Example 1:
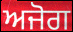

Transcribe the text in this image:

ਅਜੋਗ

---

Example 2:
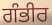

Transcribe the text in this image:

ਗੰਭੀਰ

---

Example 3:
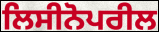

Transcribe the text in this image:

ਲਿਸੀਨੋਪਰੀਲ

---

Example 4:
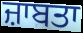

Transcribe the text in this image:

ਜ਼ਾਬਤਾ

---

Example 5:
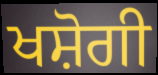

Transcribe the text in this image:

ਖਸ਼ੋਗੀ